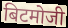
बिटमोजी